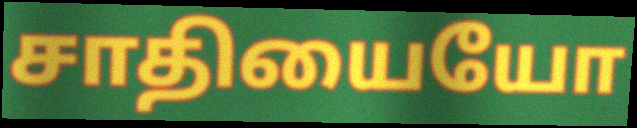
சாதியையோ